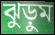
ঝুড়ুম